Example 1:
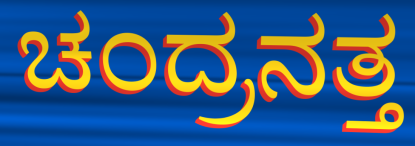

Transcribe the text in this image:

ಚಂದ್ರನತ್ತ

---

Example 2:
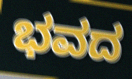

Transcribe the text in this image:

ಭವದ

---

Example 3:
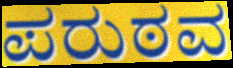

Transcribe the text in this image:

ಪರುಠವ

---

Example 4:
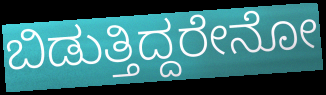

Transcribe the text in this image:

ಬಿಡುತ್ತಿದ್ದರೇನೋ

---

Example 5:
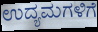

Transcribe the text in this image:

ಉದ್ಯಮಗಳಿಗೆ